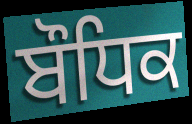
ਬੌਧਿਕ